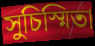
সুচিস্মিতা